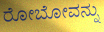
ರೋಬೋವನ್ನು